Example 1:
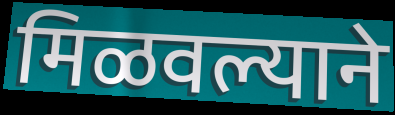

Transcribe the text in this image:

मिळवल्याने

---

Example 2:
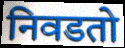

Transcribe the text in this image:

निवडतो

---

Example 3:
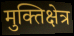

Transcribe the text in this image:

मुक्तिक्षेत्र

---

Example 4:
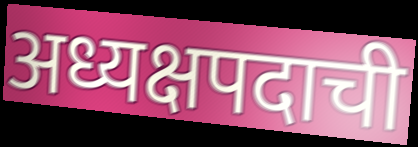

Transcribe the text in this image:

अध्यक्षपदाची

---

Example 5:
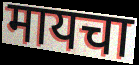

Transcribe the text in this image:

मायचा